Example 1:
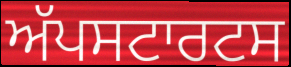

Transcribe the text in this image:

ਅੱਪਸਟਾਰਟਸ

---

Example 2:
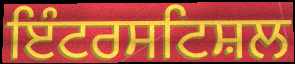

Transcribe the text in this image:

ਇੰਟਰਸਟਿਸ਼ਲ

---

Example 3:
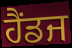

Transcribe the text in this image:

ਹੈਂਡਜ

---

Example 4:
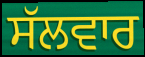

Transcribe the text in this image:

ਸੱਲਵਾਰ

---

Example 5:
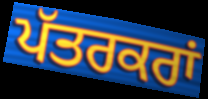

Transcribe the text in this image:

ਪੱਤਰਕਰਾਂ